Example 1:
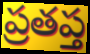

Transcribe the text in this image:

ప్రతప్త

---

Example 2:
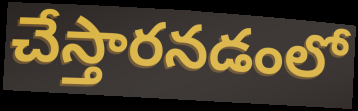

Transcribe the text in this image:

చేస్తారనడంలో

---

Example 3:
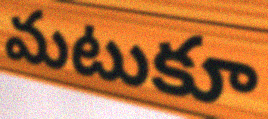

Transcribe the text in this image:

మటుకూ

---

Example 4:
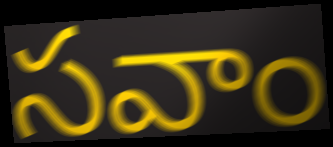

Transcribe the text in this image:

సవాం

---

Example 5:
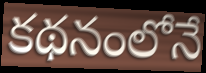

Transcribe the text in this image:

కథనంలోనే